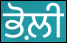
ਭੋਲ਼ੀ